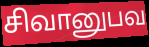
சிவானுபவ